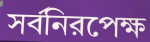
সর্বনিরপেক্ষ